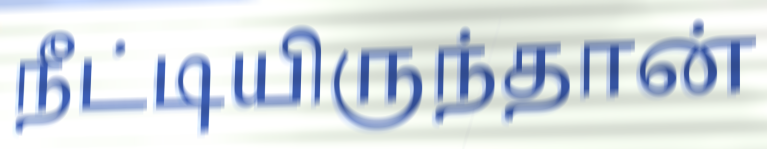
நீட்டியிருந்தான்